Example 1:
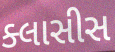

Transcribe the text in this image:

ક્લાસીસ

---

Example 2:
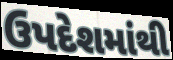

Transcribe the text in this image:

ઉપદેશમાંથી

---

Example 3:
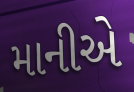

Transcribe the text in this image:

માનીએ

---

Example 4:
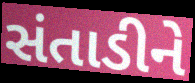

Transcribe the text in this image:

સંતાડીને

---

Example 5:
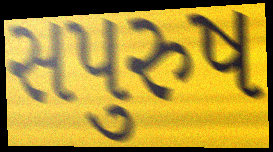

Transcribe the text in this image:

સપુરુષ